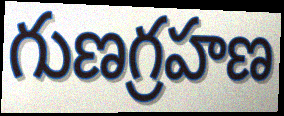
గుణగ్రహణ